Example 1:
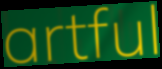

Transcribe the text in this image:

artful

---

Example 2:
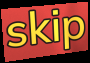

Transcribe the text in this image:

skip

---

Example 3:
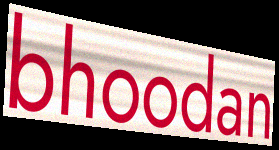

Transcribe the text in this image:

bhoodan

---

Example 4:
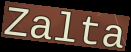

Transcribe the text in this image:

Zalta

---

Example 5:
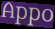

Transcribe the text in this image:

Appo